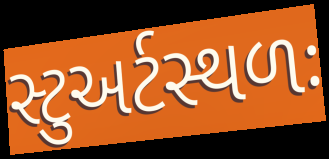
સ્ટુઅર્ટસ્થળઃ